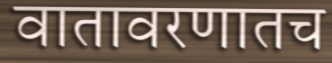
वातावरणातच